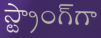
స్ట్రాంగ్‌గా